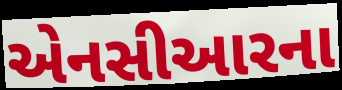
એનસીઆરના